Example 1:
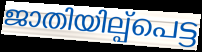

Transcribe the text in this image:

ജാതിയില്പ്പെട്ട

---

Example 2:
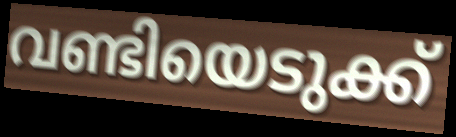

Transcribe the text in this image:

വണ്ടിയെടുക്ക്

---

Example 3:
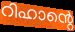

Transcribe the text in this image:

റിഹാന്റെ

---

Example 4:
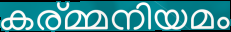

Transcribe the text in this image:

കര്മ്മനിയമം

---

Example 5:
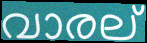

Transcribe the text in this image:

വാരല്